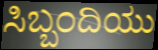
ಸಿಬ್ಬಂದಿಯು